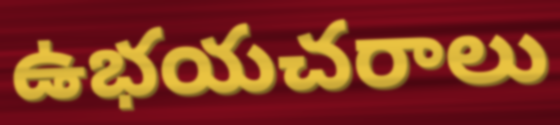
ఉభయచరాలు